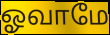
ஓவாமே